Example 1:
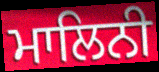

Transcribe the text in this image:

ਮਾਲਿਨੀ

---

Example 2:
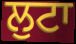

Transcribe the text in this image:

ਲੁਟਾ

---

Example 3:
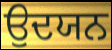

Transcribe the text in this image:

ਉਦਯਨ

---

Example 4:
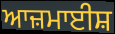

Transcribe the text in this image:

ਆਜ਼ਮਾਈਸ਼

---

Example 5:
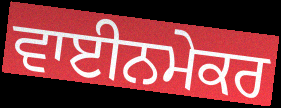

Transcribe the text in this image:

ਵਾਈਨਮੇਕਰ